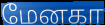
மேனகா